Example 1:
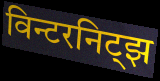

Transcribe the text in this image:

विन्टरनिट्झ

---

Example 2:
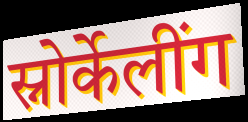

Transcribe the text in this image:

स्नोर्केलींग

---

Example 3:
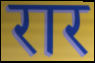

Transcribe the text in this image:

रार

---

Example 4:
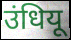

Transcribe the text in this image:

उंधियू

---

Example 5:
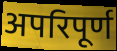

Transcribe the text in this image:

अपरिपूर्ण